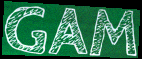
GAM